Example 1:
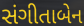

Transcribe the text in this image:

સંગીતાબેન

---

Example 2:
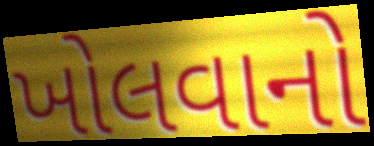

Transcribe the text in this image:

ખોલવાનો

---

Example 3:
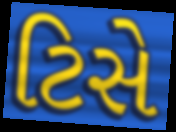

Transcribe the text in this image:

ટિસે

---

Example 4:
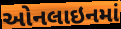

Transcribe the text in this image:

ઓનલાઇનમાં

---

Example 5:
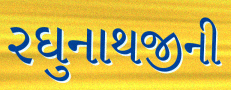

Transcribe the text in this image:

રઘુનાથજીની